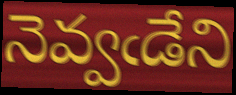
నెవ్వఁడేని